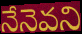
నేనెవని